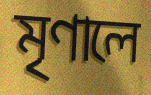
মৃণালে